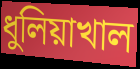
ধুলিয়াখাল